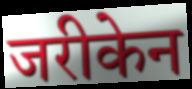
जरीकेन